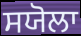
ਸਯੋਲਾ